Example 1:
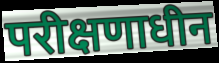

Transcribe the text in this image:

परीक्षणाधीन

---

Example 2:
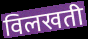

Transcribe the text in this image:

विलखती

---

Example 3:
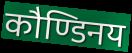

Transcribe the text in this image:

कौण्डिनय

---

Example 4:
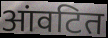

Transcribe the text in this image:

आंवटित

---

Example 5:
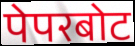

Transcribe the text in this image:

पेपरबोट